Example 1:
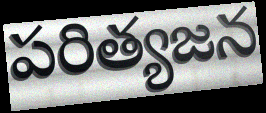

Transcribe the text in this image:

పరిత్యజన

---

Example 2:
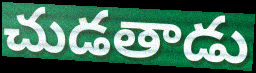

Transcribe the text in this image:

చుడతాడు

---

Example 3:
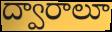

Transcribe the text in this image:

ద్వారాలూ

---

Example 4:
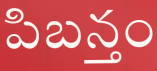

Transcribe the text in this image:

పిబన్తం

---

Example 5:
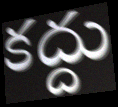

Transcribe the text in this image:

కద్దు